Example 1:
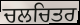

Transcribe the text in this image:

ਚਲਚਿਤਰ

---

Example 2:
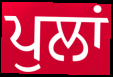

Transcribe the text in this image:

ਪੁਲਾਂ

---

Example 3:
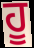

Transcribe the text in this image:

ਹੂ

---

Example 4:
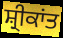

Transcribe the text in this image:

ਸ਼੍ਰੀਕਾਂਤ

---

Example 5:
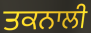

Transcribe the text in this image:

ਤਕਨਾਲੀ